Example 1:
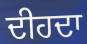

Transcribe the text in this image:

ਦੀਹਦਾ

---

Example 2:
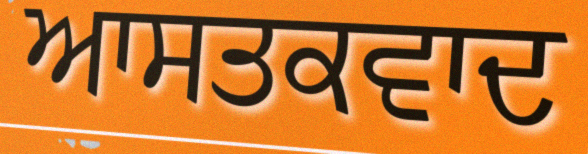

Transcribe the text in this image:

ਆਸਤਕਵਾਦ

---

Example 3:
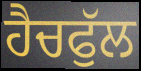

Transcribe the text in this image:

ਹੈਚਫੁੱਲ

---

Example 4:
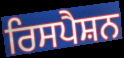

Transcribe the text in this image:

ਰਿਸਪੈਸ਼ਨ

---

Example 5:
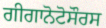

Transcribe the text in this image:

ਗੀਗਾਨੋਟੋਸੌਰਸ